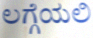
ಲಗ್ಗೆಯಲಿ